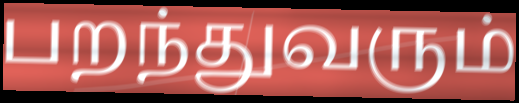
பறந்துவரும்